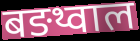
बङथ्वाल